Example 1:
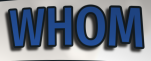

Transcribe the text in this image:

WHOM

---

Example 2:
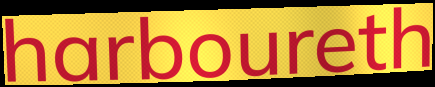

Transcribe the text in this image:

harboureth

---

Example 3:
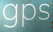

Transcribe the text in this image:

gps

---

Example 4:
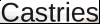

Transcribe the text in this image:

Castries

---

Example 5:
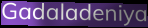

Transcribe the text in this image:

Gadaladeniya